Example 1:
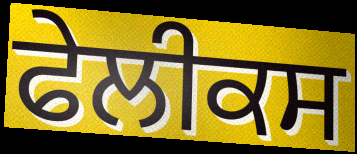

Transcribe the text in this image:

ਫੇਲੀਕਸ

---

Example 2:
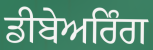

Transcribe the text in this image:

ਡੀਬੇਅਰਿੰਗ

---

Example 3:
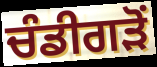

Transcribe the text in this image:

ਚੰਡੀਗੜੋਂ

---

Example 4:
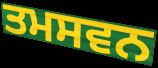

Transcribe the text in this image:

ਤਮਸਵਨ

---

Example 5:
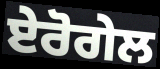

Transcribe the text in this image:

ਏਰੋਗੇਲ